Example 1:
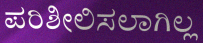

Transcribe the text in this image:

ಪರಿಶೀಲಿಸಲಾಗಿಲ್ಲ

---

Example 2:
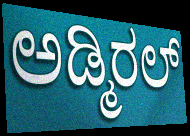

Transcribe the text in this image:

ಅಡ್ಮಿರಲ್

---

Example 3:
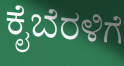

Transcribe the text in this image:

ಕೈಬೆರಳಿಗೆ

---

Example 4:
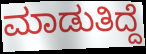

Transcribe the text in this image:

ಮಾಡುತಿದ್ದೆ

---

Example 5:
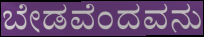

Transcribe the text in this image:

ಬೇಡವೆಂದವನು